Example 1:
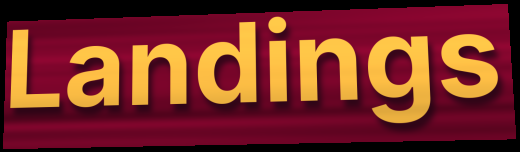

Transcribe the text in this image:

Landings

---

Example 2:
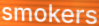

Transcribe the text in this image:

smokers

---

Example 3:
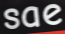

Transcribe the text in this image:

sae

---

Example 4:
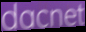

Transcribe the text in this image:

dacnet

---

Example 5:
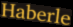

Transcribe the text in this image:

Haberle